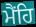
ਮੈਂਹਿ